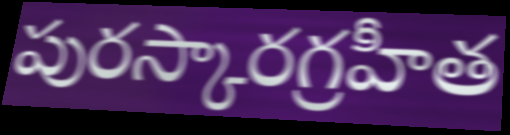
పురస్కారగ్రహీత